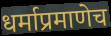
धर्माप्रमाणेच